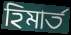
হিমার্ত